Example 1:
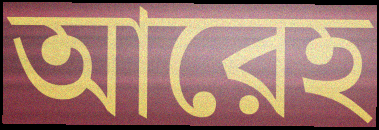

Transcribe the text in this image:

আরেহ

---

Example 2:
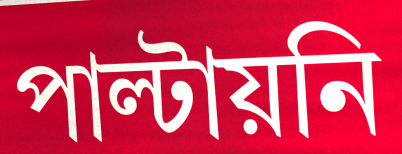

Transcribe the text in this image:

পাল্টায়নি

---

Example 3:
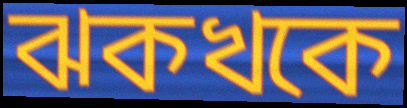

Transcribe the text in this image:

ঝকখকে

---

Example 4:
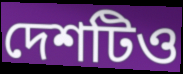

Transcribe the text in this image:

দেশটিও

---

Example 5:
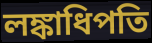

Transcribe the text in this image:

লঙ্কাধিপতি